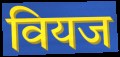
वियज